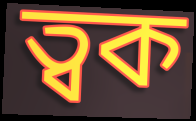
ত্বক